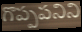
గొప్పపనిని